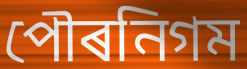
পৌৰনিগম